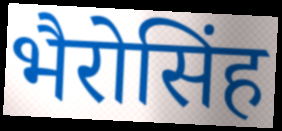
भैरोसिंह